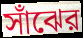
সাঁঝের